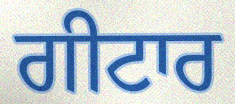
ਗੀਟਾਰ